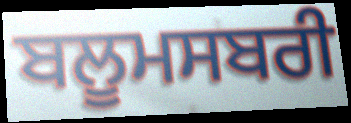
ਬਲੂਮਸਬਰੀ